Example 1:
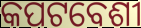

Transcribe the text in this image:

କପଟବେଶୀ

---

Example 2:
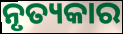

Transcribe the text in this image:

ନୃତ୍ୟକାର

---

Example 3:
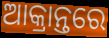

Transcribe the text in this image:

ଆକ୍ରାନ୍ତରେ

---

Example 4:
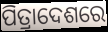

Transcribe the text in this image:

ପିତ୍ରାଦେଶରେ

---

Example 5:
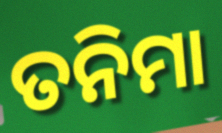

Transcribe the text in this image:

ତନିମା